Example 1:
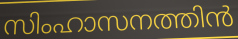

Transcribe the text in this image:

സിംഹാസനത്തിൻ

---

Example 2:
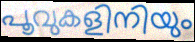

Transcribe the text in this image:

പൂവുകളിനിയും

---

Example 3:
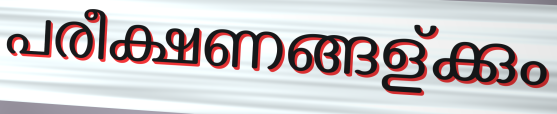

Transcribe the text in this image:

പരീക്ഷണങ്ങള്ക്കും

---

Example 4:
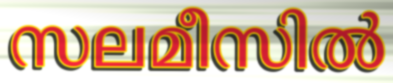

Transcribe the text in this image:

സലമീസിൽ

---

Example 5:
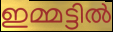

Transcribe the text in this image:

ഇമ്മട്ടിൽ